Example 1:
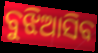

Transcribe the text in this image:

ବୁଝିଆସିବ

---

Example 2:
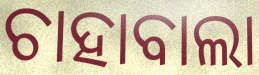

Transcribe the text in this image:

ଚାହାବାଲା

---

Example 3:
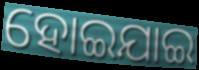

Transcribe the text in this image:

ହୋଇଯାଇ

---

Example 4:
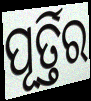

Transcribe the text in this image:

ପୂର୍ତ୍ତିର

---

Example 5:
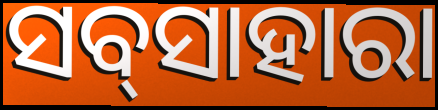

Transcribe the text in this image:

ସବ୍‌ସାହାରା